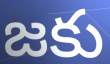
జకు